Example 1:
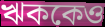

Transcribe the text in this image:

ঋককেও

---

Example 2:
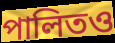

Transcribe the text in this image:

পালিতও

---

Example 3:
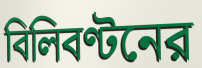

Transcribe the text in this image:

বিলিবণ্টনের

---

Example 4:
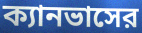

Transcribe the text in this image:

ক্যানভাসের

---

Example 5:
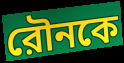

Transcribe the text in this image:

রৌনকে